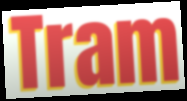
Tram